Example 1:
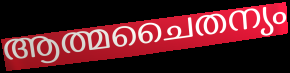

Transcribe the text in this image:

ആത്മചൈതന്യം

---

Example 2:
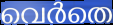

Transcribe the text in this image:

വെർതെ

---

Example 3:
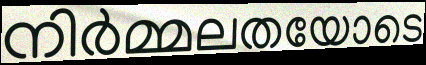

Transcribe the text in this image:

നിർമ്മലതയോടെ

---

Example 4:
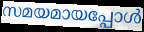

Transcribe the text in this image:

സമയമായപ്പോൾ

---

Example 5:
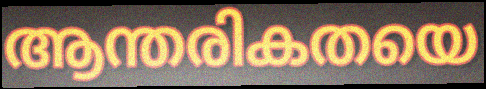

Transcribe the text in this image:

ആന്തരികതയെ